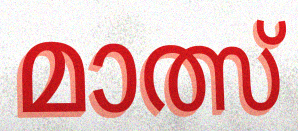
മാത്സ്